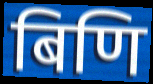
बिणि